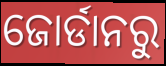
ଜୋର୍ଡାନରୁ